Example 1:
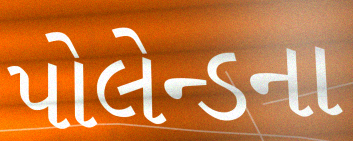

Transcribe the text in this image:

પોલેન્ડના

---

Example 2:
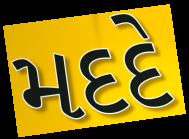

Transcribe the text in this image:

મદદે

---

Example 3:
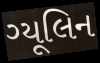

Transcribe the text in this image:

ગ્યૂલિન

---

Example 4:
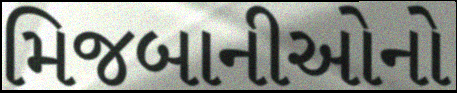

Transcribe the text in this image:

મિજબાનીઓનો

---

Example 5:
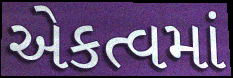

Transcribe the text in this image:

એકત્વમાં